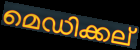
മെഡിക്കല്